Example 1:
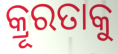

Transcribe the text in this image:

କ୍ରୂରତାକୁ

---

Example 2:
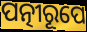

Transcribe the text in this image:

ପତ୍ନୀରୂପେ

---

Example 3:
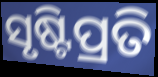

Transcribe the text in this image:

ସୃଷ୍ଟିପ୍ରତି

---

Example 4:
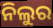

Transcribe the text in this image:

ନିଲୁର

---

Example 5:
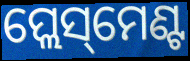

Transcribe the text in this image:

ପ୍ଲେସ୍‌ମେଣ୍ଟ